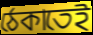
ঠেকাতেই